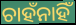
ଚାହଁନାହିଁ